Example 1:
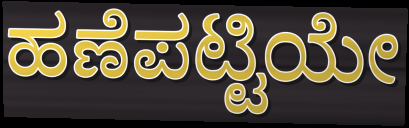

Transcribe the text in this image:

ಹಣೆಪಟ್ಟಿಯೇ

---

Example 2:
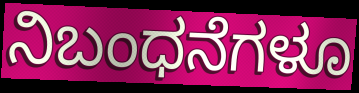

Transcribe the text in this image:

ನಿಬಂಧನೆಗಳೂ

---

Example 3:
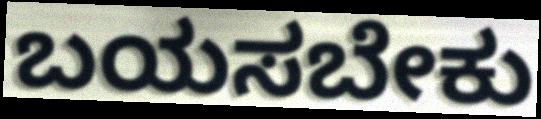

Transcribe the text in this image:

ಬಯಸಬೇಕು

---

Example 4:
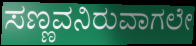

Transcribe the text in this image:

ಸಣ್ಣವನಿರುವಾಗಲೇ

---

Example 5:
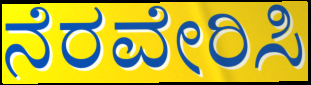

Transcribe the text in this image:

ನೆರವೇರಿಸಿ